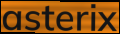
asterix